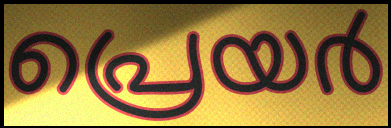
പ്രെയർ